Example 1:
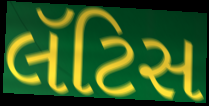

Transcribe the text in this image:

લૅટિસ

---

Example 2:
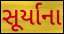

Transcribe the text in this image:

સૂર્યાના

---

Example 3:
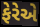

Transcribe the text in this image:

ફેરેએ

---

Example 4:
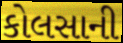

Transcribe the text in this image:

કોલસાની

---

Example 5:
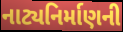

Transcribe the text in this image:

નાટ્યનિર્માણની